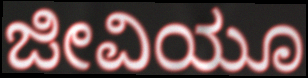
ಜೀವಿಯೂ